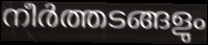
നീർത്തടങ്ങളും